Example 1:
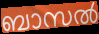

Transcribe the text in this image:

ബാസൽ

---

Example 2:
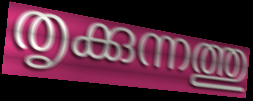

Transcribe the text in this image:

തൃക്കുന്നത്തു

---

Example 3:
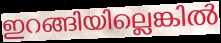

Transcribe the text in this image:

ഇറങ്ങിയില്ലെങ്കിൽ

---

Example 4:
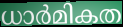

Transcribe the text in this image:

ധാർമികത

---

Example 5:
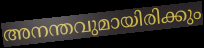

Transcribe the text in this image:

അനന്തവുമായിരിക്കും